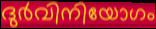
ദുർവിനിയോഗം